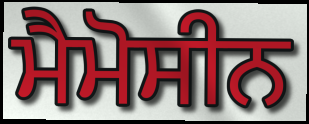
ਮੈਮੋਸੀਨ